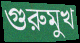
গুরুমুখ